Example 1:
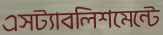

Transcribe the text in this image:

এসট্যাবলিশমেন্টে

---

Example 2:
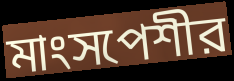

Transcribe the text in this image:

মাংসপেশীর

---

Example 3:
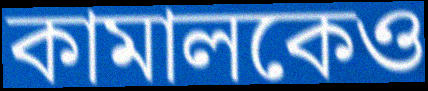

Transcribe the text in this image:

কামালকেও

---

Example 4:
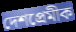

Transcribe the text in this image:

দেশপ্রেমীক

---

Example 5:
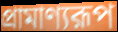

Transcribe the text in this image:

প্রামাণ্যরূপ